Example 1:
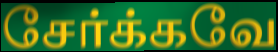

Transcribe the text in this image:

சேர்க்கவே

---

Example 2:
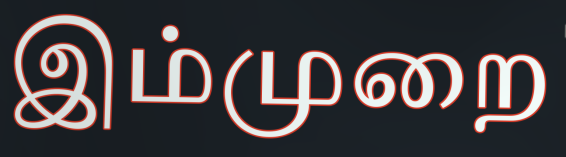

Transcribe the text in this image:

இம்முறை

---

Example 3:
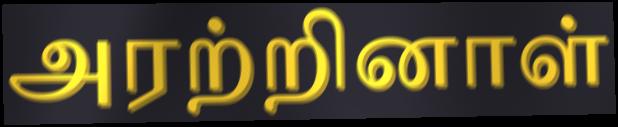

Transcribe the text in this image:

அரற்றினாள்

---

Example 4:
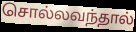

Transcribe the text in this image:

சொல்லவந்தால்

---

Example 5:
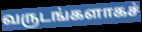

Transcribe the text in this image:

வருடங்களாகச்